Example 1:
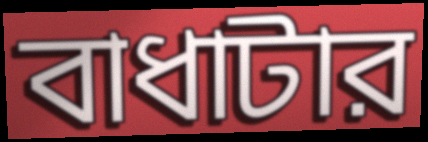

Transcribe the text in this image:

বাধাটার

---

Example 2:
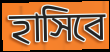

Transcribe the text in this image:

হাসিবে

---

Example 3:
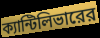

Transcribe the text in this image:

ক্যান্টিলিভারের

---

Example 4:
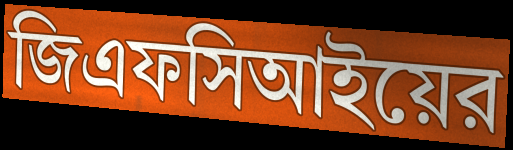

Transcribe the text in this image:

জিএফসিআইয়ের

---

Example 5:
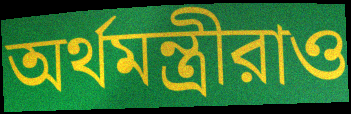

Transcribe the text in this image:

অর্থমন্ত্রীরাও